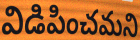
విడిపించమని